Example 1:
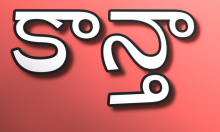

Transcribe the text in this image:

కాన్తా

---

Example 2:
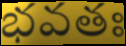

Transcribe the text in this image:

భవతః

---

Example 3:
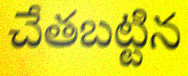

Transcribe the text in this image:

చేతబట్టిన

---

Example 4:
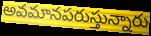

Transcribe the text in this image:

అవమానపరుస్తున్నారు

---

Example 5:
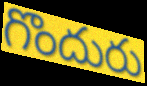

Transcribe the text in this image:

గొందురు